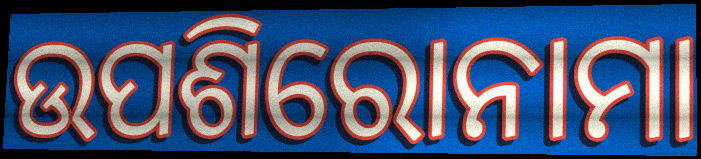
ଉପଶିରୋନାମା